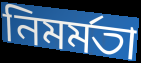
নিমর্মতা